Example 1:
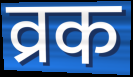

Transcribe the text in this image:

व्रक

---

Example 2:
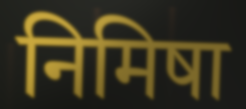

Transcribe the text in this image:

निमिषा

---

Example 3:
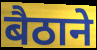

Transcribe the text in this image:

बैठाने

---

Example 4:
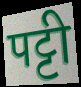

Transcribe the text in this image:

पट्टी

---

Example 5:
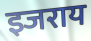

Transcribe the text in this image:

इजराय